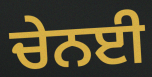
ਚੇਨਈ